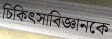
চিকিৎসাবিজ্ঞানকে